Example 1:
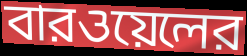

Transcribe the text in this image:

বারওয়েলের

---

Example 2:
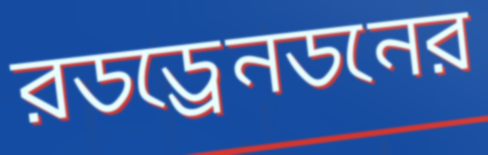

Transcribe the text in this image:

রডড্রেনডনের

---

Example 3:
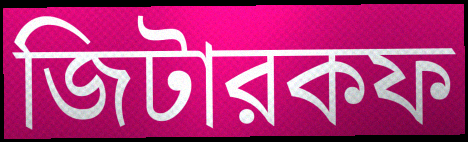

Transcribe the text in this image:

জিটারকফ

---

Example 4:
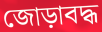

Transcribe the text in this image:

জোড়াবদ্ধ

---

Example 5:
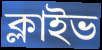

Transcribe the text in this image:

ক্লাইভ